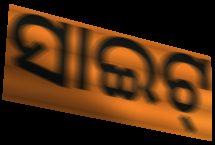
ସାଇଟ୍